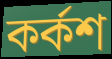
কর্কশ